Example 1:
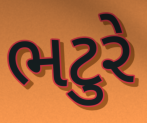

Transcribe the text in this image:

ભટુરે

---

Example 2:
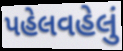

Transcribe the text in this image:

પહેલવહેલું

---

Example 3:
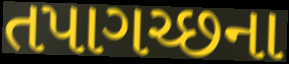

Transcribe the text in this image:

તપાગચ્છના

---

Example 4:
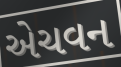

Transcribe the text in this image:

એચવન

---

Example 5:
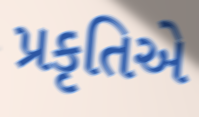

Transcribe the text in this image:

પ્રકૃતિએ